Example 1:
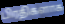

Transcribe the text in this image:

பிரதிகளாக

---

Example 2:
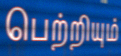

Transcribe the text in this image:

பெற்றியும்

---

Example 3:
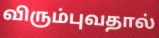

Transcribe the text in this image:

விரும்புவதால்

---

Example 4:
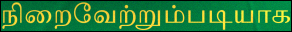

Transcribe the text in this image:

நிறைவேற்றும்படியாக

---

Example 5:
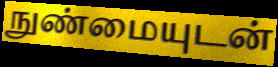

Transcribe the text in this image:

நுண்மையுடன்